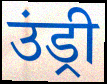
उंड्री